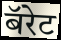
बॅरेट